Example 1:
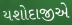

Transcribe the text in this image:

યશોદાજીએ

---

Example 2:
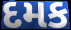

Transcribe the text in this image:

દમક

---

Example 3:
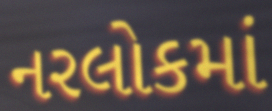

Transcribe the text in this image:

નરલોકમાં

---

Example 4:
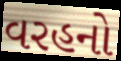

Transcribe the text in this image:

વરહનો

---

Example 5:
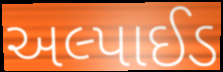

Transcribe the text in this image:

અલ્પાઈડ